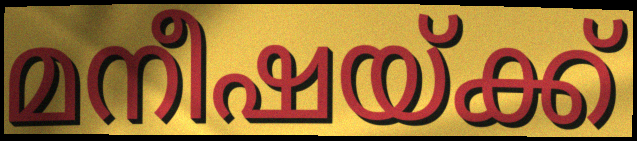
മനീഷയ്ക്ക്